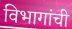
विभागांची